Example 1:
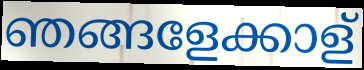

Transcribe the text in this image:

ഞങ്ങളേക്കാള്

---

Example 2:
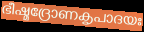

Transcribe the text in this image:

ഭീഷ്മദ്രോണകൃപാദയഃ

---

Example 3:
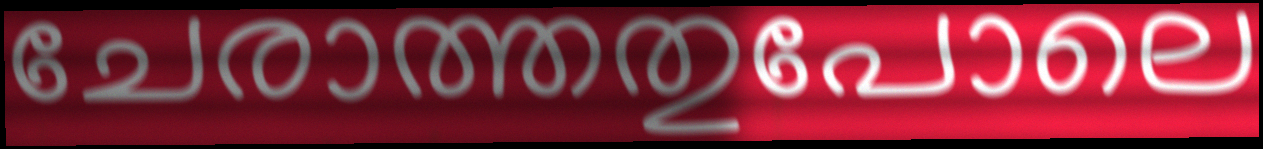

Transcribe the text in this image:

ചേരാത്തതുപോലെ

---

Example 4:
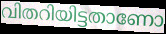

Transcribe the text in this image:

വിതറിയിട്ടതാണോ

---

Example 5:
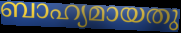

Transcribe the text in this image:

ബാഹ്യമായതു